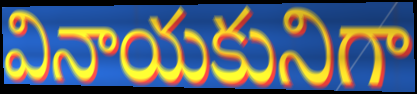
వినాయకునిగా